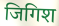
जिगिश